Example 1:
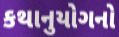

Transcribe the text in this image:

કથાનુયોગનો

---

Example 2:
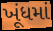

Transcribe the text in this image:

ખૂંધમાં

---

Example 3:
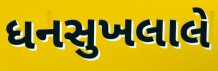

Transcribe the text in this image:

ધનસુખલાલે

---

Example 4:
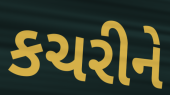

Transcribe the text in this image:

કચરીને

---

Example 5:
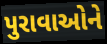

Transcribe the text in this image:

પુરાવાઓને